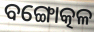
ବଙ୍ଗୋତ୍କଳ